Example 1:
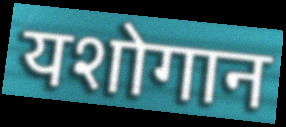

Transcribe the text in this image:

यशोगान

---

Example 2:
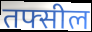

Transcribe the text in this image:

तफ्सील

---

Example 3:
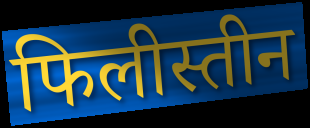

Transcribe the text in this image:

फिलीस्तीन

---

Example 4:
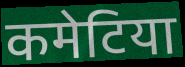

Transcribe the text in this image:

कमेटिया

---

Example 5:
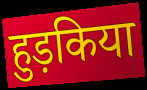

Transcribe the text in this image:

हुड़किया